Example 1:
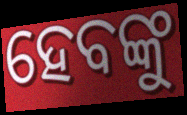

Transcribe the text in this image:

ହେବଙ୍କୁ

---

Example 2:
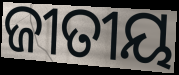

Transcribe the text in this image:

ଜୀତୀୟ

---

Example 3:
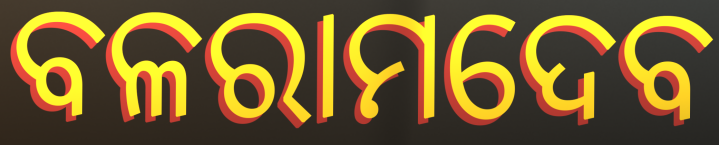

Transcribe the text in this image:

ବଳରାମଦେବ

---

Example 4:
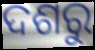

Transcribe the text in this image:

ଦଶରୁ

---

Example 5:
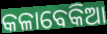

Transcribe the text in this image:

କଳାବେକିଆ